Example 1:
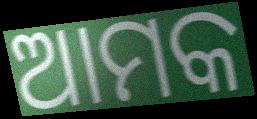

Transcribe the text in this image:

ଆମକ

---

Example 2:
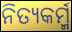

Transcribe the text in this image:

ନିତ୍ୟକର୍ମ୍ମ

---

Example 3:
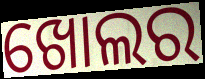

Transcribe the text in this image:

ଖୋଲର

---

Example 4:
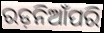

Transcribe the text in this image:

ରଡ଼ନିଆଁପରି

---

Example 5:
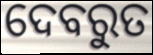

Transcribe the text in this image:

ଦେବରୁତ